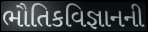
ભૌતિકવિજ્ઞાનની